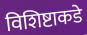
विशिष्टाकडे